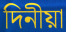
দিনীয়া